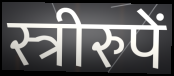
स्त्रीरुपें